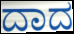
ದಾದ